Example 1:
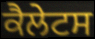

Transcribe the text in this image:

ਕੈਲੇਟਸ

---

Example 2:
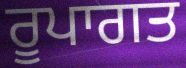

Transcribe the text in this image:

ਰੂਪਾਗਤ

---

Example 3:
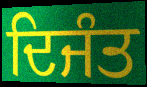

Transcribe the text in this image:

ਦਿਜੰਤ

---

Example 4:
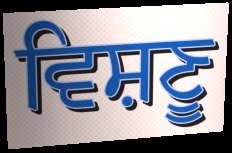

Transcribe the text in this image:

ਵਿਸ਼ਣੂ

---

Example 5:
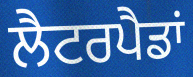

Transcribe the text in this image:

ਲੈਟਰਪੈਡਾਂ